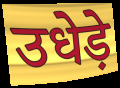
उधेड़े